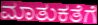
ಮಾತುಕತೆಗೆ